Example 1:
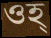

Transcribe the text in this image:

ওহ্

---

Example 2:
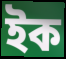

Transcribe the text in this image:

ইক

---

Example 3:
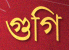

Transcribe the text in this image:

গুগি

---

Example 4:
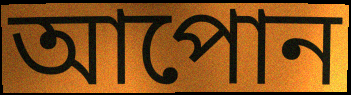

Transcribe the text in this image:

আপোন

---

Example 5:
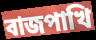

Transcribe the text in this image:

বাজপাখি